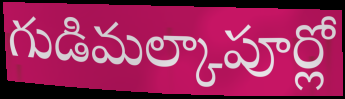
గుడిమల్కాపూర్లో